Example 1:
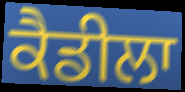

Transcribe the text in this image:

ਕੈਡੀਲਾ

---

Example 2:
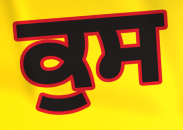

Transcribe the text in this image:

ਕੁਸ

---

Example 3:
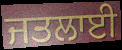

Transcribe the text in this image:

ਜਤਲਾਈ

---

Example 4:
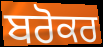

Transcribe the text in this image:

ਬਰੋਕਰ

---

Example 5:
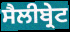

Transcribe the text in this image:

ਸੈਲੀਬ੍ਰੇਟ